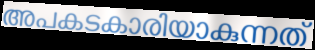
അപകടകാരിയാകുന്നത്